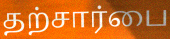
தற்சார்பை